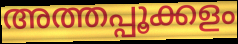
അത്തപ്പൂക്കളം